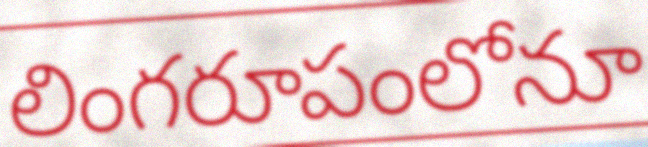
లింగరూపంలోనూ